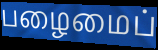
பழைமைப்